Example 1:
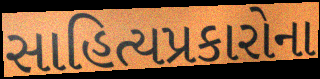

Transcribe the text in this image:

સાહિત્યપ્રકારોના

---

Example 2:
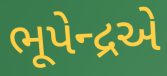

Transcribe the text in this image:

ભૂપેન્દ્રએ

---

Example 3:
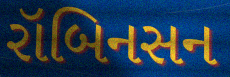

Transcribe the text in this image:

રૉબિનસન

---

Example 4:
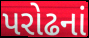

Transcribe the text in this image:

પરોઢનાં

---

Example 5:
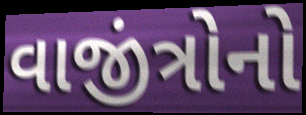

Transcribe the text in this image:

વાજીંત્રોનો